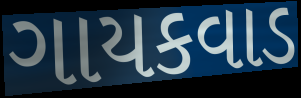
ગાયકવાડ